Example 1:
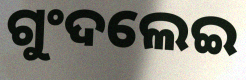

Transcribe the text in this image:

ଗୁଂଦଲେଇ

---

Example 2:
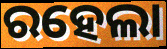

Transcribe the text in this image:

ରହେଲା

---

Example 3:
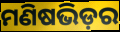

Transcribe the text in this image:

ମଣିଷଭିଡ଼ର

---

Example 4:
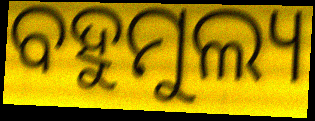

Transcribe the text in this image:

ବହୁମୁଲ୍ୟ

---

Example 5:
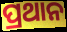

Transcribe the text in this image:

ପ୍ରଥାନ